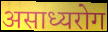
असाध्यरोग